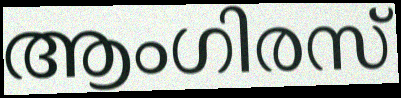
ആംഗിരസ്